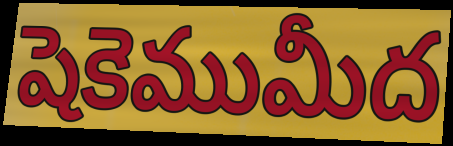
షెకెముమీద